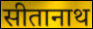
सीतानाथ